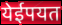
येईपयत